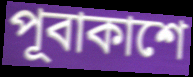
পূবাকাশে